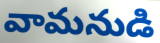
వామనుడి